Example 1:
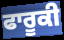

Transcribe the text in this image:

ਫਾਰੂਕੀ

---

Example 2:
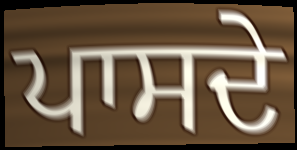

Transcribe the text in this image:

ਪਾਸਦੇ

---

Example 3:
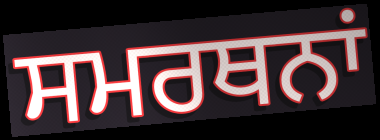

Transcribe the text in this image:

ਸਮਰਥਨਾਂ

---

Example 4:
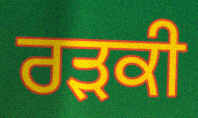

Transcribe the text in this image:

ਰੜਕੀ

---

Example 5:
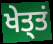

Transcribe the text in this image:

ਖੇਤ੍ਤਂ